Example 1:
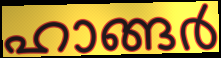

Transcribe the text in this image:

ഹാങ്ങർ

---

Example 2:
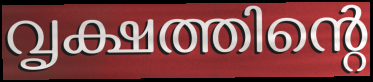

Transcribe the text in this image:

വൃക്ഷത്തിന്റെ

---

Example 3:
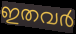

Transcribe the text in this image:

ഇതവർ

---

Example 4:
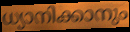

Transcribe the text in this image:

ധ്യാനിക്കാനും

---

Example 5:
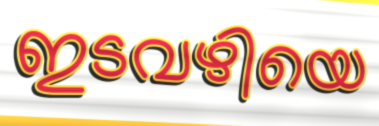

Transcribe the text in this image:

ഇടവഴിയെ